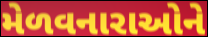
મેળવનારાઓને